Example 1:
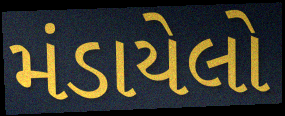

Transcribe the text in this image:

મંડાયેલો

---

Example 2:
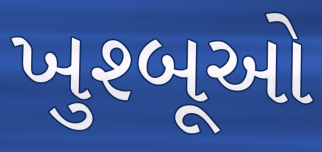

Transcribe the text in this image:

ખુશ્બૂઓ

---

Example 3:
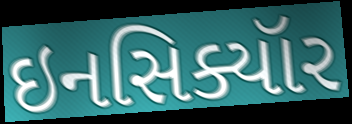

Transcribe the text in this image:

ઇનસિક્યૉર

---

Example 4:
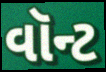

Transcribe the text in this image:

વૉન્ટ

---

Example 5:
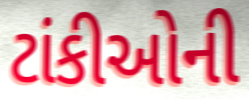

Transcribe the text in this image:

ટાંકીઓની